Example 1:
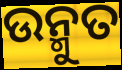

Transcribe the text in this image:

ଉନ୍ମୁତ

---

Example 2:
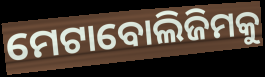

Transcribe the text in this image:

ମେଟାବୋଲିଜିମକୁ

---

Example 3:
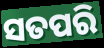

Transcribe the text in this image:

ସତପରି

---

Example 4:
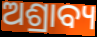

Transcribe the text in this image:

ଅଶ୍ରାବ୍ୟ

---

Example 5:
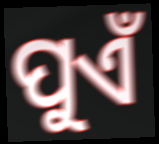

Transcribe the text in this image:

ପୁଏଁ